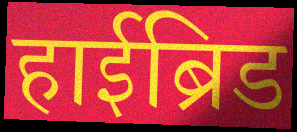
हाईब्रिड